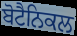
ਬੋਟੈਨਿਕਲ